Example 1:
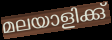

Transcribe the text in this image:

മലയാളിക്കു്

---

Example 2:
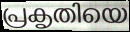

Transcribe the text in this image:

പ്രകൃതിയെ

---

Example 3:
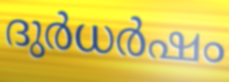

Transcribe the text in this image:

ദുർധർഷം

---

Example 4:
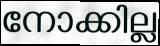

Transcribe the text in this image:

നോക്കില്ല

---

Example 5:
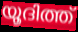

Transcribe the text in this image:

യൂദിത്ത്